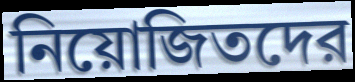
নিয়োজিতদের